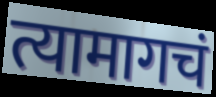
त्यामागचं